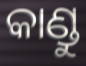
କାଣ୍ଡୁ